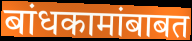
बांधकामांबाबत